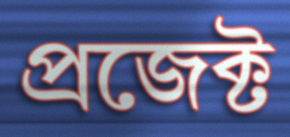
প্ৰজেক্ট